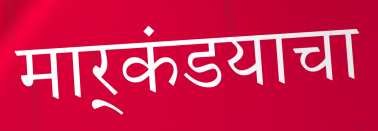
मार्कंडयाचा